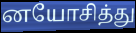
னயோசித்து